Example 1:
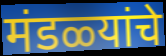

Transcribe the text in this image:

मंडळ्यांचे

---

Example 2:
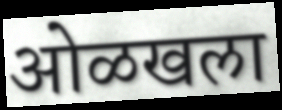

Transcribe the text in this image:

ओळखला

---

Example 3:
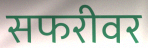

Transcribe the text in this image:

सफरीवर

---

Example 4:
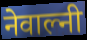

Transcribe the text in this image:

नेवाल्नी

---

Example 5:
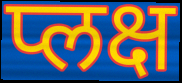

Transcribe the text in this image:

प्लक्ष